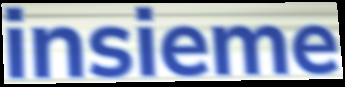
insieme